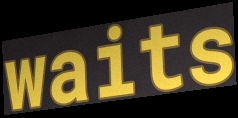
waits